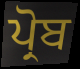
ਪ੍ਰੋਬ